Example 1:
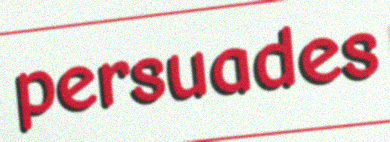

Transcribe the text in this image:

persuades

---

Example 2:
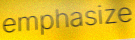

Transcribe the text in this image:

emphasize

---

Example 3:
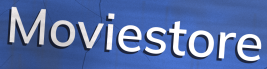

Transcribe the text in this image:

Moviestore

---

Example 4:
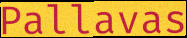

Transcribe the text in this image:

Pallavas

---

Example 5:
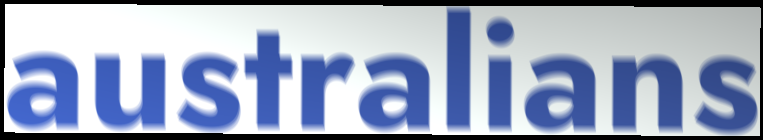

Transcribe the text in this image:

australians